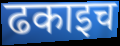
ढकाइच